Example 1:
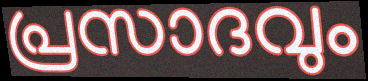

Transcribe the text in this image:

പ്രസാദവും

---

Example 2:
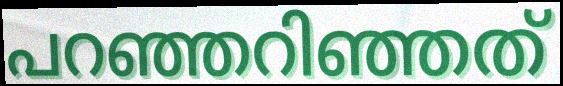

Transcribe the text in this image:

പറഞ്ഞറിഞ്ഞത്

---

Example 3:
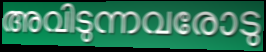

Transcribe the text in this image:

അവിടുന്നവരോടു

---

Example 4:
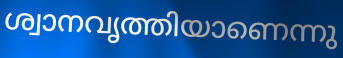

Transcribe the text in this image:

ശ്വാനവൃത്തിയാണെന്നു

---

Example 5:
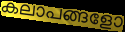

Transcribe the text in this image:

കലാപങ്ങളോ